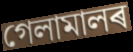
গেলামালৰ